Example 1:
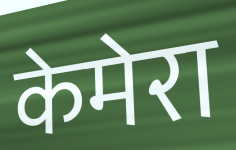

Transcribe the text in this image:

केमेरा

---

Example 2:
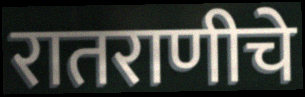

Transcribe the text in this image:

रातराणीचे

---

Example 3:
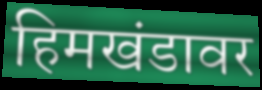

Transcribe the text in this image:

हिमखंडावर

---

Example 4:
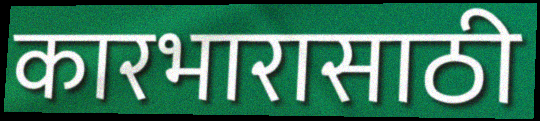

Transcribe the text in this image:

कारभारासाठी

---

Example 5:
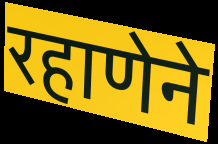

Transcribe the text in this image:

रहाणेने